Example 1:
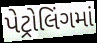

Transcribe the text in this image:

પેટ્રોલિંગમાં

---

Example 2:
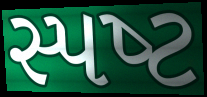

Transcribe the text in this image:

સ્પષ્‍ટ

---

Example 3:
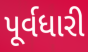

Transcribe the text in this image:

પૂર્વધારી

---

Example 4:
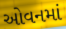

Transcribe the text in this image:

ઓવનમાં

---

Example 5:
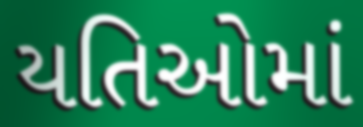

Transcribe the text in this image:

યતિઓમાં